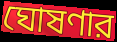
ঘোষণার